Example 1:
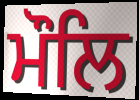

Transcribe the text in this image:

ਮੌਲਿ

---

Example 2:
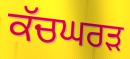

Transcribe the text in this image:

ਕੱਚਘਰੜ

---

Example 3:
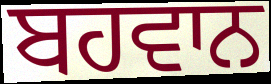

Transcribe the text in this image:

ਬਹਵਾਨ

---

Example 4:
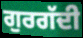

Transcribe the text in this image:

ਗੁਰਗੱਦੀ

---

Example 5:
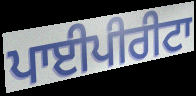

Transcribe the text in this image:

ਪਾਈਪੀਰੀਟਾ